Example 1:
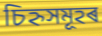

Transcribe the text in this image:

চিহ্নসমূহৰ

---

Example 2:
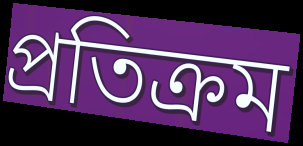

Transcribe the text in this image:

প্ৰতিক্ৰম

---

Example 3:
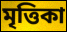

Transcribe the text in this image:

মৃত্তিকা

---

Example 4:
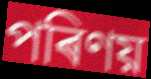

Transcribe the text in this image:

পৰিণয়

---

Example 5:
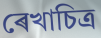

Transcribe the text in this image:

ৰেখাচিত্ৰ